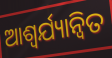
ଆଶ୍ବର୍ଯ୍ୟାନ୍ବିତ